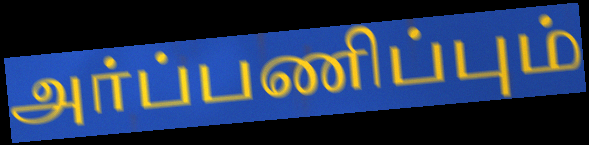
அர்ப்பணிப்பும்